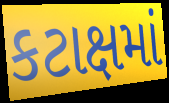
કટાક્ષમાં